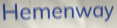
Hemenway